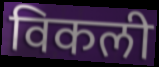
विकली